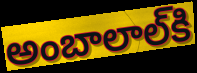
అంబాలాల్‌కి